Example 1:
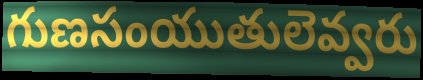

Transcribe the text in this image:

గుణసంయుతులెవ్వరు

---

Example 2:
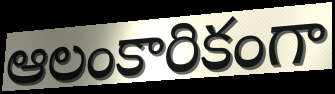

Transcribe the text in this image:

ఆలంకారికంగా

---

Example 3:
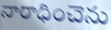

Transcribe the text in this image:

నారాధించెను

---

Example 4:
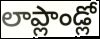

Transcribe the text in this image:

లాప్లాండ్లో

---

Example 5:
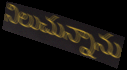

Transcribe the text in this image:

నిలుచున్నాను